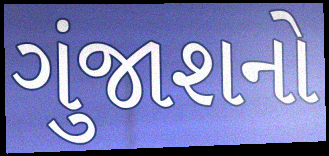
ગુંજાશનો